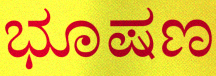
ಭೂಷಣ